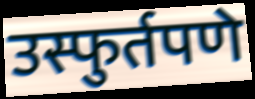
उस्फुर्तपणे